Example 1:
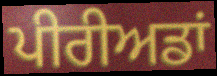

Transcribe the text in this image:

ਪੀਰੀਅਡਾਂ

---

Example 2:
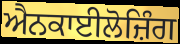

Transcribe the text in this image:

ਐਨਕਾਈਲੋਜ਼ਿੰਗ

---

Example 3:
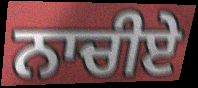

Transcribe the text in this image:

ਨਾਚੀਏ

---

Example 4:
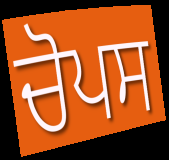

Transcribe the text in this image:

ਚੋਪਸ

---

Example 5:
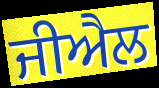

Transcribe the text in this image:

ਜੀਐਲ